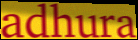
adhura